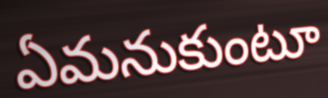
ఏమనుకుంటూ